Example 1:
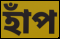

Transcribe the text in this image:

হাঁপ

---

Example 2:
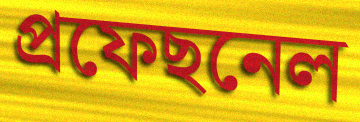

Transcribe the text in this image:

প্ৰফেছনেল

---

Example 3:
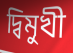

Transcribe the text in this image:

দ্বিমুখী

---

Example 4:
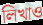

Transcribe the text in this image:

লিখাও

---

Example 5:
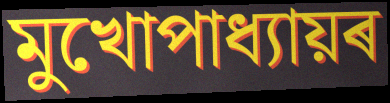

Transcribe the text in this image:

মুখোপাধ্যায়ৰ